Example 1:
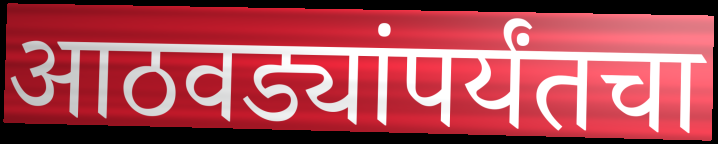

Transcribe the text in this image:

आठवड्यांपर्यंतचा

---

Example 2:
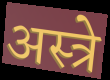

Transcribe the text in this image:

अस्त्रे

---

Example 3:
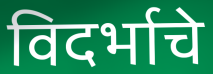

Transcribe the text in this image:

विदर्भाचे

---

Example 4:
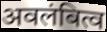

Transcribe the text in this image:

अवलंबित्व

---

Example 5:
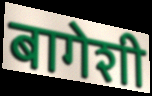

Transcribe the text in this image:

बागेशी